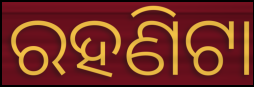
ରହଣିଟା